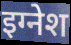
इग्नेश